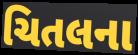
ચિતલના